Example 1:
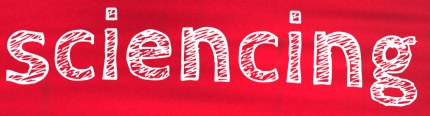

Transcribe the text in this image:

sciencing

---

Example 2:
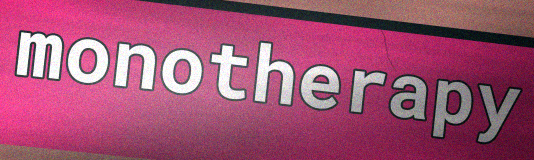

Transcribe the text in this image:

monotherapy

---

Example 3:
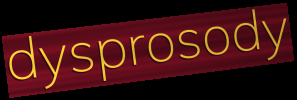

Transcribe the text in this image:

dysprosody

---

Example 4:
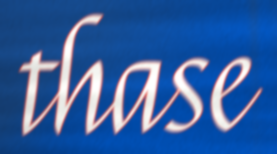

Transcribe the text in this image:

thase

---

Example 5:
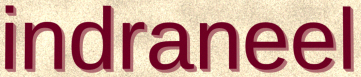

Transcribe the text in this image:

indraneel